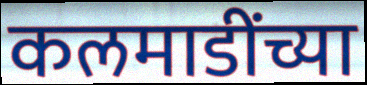
कलमाडींच्या